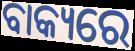
ବାକ୍ୟରେ